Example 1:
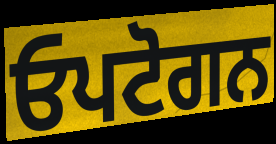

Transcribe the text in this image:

ਓਪਟੋਗਨ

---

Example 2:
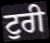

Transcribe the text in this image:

ਟੁਰੀ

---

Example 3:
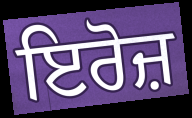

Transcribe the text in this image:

ਇਰੋਜ਼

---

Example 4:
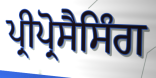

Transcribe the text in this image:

ਪ੍ਰੀਪ੍ਰੋਸੈਸਿੰਗ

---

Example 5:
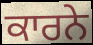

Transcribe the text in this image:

ਕਾਰਨੇ